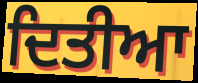
ਦਿਤੀਆ